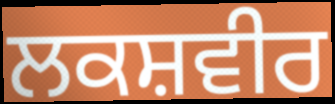
ਲਕਸ਼ਵੀਰ